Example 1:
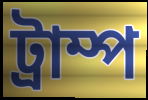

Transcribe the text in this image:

ট্রাম্প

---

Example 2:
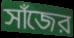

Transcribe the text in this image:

সাঁজের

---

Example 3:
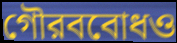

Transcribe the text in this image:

গৌরববোধও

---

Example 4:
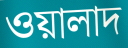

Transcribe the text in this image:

ওয়ালাদ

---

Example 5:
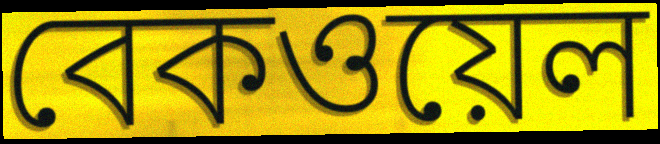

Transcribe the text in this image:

বেকওয়েল